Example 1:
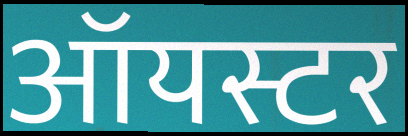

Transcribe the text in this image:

ऑयस्टर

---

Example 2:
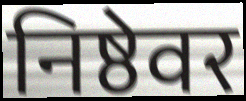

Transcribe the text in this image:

निष्ठेवर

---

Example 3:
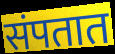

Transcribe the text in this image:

संपतात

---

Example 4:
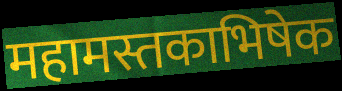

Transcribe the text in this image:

महामस्तकाभिषेक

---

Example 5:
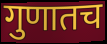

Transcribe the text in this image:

गुणातच